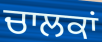
ਚਾਲਕਾਂ